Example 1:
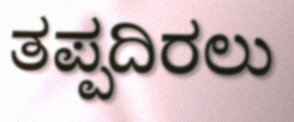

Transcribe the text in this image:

ತಪ್ಪದಿರಲು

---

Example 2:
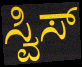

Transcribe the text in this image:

ಸ್ವಿಸ್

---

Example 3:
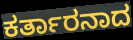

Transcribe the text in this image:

ಕರ್ತಾರನಾದ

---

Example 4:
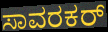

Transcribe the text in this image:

ಸಾವರಕರ್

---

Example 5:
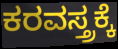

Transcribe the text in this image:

ಕರವಸ್ತ್ರಕ್ಕೆ